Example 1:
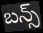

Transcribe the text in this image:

బన్స్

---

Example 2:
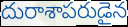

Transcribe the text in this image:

దురాశాపరుడైన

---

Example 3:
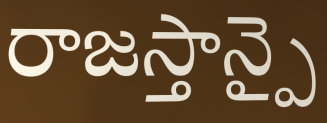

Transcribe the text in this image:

రాజస్తాన్పై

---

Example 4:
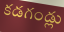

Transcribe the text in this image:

కడగండ్లు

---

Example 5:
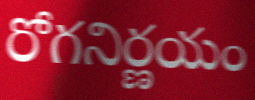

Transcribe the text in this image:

రోగనిర్ణయం